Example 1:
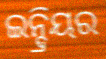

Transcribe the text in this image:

ଇନ୍ଦ୍ରିୟର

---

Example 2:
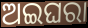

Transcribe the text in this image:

ଅଇଘରା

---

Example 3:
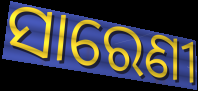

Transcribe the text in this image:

ସାରେଣୀ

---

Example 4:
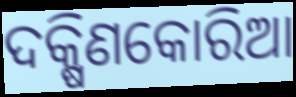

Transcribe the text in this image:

ଦକ୍ଷିଣକୋରିଆ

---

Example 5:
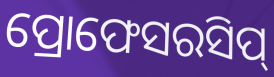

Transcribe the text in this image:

ପ୍ରୋଫେସରସିପ୍